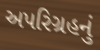
અપરિગ્રહનું